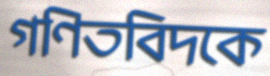
গণিতবিদকে